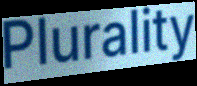
Plurality